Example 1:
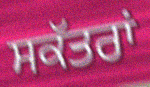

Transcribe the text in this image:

ਸਕੱਤਰਾਂ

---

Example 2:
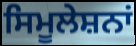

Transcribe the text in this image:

ਸਿਮੂਲੇਸ਼ਨਾਂ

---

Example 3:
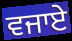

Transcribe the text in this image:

ਵਜਾਏ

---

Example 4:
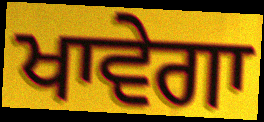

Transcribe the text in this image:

ਖਾਵੇਗਾ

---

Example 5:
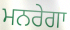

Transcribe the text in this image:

ਮਨਰੇਗਾ